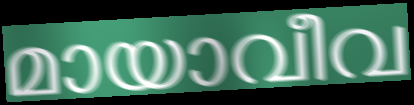
മായാവീവ